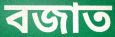
বজাত